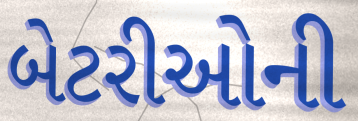
બેટરીઓની